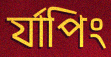
র্যাপিং